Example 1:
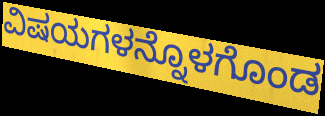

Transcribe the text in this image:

ವಿಷಯಗಳನ್ನೊಳಗೊಂಡ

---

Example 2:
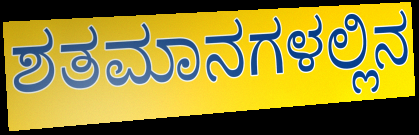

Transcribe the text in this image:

ಶತಮಾನಗಳಲ್ಲಿನ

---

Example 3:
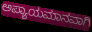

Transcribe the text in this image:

ಅಪ್ಯಾಯಮಾನವಾಗಿ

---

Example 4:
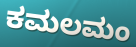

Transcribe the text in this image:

ಕಮಲಮಂ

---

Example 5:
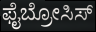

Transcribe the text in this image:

ಫೈಬ್ರೋಸಿಸ್